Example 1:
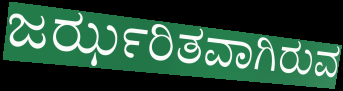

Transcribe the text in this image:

ಜರ್ಝರಿತವಾಗಿರುವ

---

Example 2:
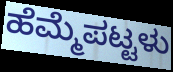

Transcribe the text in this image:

ಹೆಮ್ಮೆಪಟ್ಟಳು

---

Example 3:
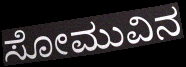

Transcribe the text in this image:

ಸೋಮುವಿನ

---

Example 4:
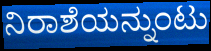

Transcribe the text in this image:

ನಿರಾಶೆಯನ್ನುಂಟು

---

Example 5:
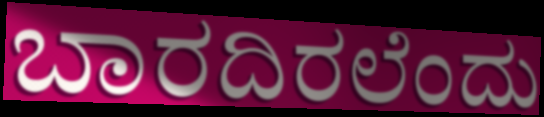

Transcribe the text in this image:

ಬಾರದಿರಲೆಂದು